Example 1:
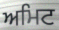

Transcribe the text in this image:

ਅਮਿਟ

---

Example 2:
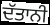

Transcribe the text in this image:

ਦੱਤਾਨੀ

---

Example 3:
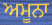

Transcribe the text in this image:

ਅਮੂਨਾ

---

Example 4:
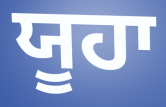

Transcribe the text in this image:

ਯੂਹਾ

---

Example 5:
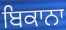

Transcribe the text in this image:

ਬਿਕਾਨਾ